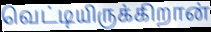
வெட்டியிருக்கிறான்